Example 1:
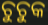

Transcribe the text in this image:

ଚୁଚୁକ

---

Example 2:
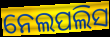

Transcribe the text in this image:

ନେଲପଲିସ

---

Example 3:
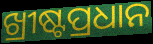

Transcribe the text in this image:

ଖ୍ରୀଷ୍ଟପ୍ରଧାନ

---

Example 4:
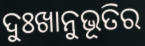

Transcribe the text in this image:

ଦୁଃଖାନୁଭୂତିର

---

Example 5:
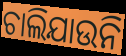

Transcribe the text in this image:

ଚାଲିଯାଉନି